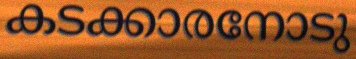
കടക്കാരനോടു